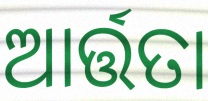
ଆର୍ତ୍ତତା